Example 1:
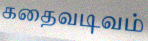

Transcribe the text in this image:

கதைவடிவம்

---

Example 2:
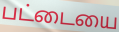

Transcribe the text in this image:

பட்டையை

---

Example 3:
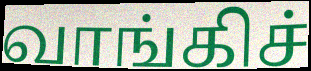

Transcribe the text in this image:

வாங்கிச்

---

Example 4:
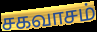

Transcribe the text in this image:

சகவாசம்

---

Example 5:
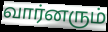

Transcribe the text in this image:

வார்னரும்